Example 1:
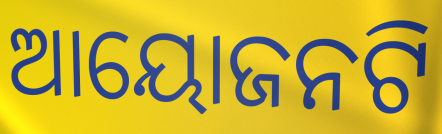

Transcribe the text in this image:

ଆୟୋଜନଟି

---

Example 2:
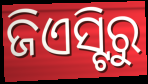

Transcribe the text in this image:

ଜିଏସ୍ଟିରୁ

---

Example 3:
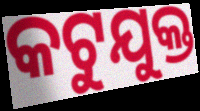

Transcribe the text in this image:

କଟୁଯୁକ୍ତ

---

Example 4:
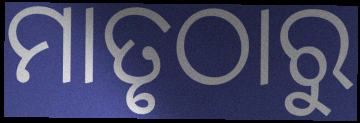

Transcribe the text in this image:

ମାତୃଠାରୁ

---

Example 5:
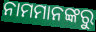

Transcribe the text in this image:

ନାମମାନଙ୍କରୁ